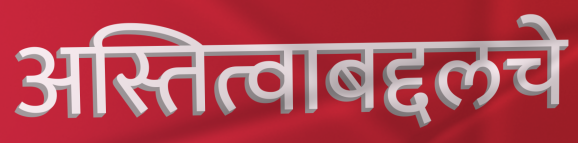
अस्तित्वाबद्दलचे